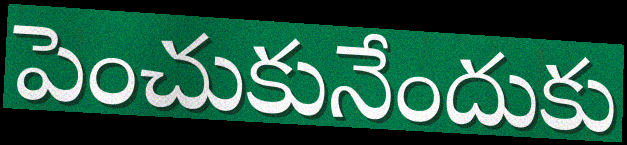
పెంచుకునేందుకు